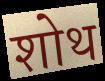
शोथ